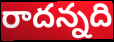
రాదన్నది